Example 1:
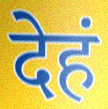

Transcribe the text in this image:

देहं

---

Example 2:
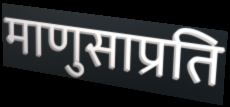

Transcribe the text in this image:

माणुसाप्रति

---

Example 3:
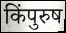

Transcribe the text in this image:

किंपुरुष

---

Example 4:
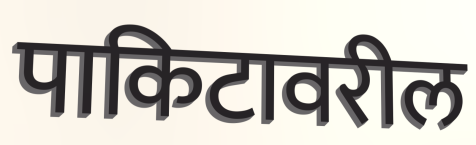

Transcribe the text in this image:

पाकिटावरील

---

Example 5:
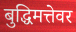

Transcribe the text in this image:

बुद्धिमत्तेवर